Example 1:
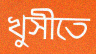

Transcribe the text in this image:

খুসীতে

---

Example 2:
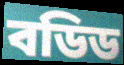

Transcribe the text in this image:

বডিড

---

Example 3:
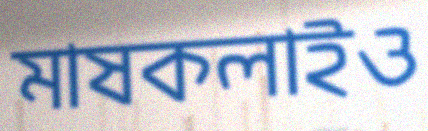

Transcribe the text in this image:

মাষকলাইও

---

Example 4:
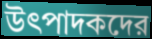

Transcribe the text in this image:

উৎপাদকদের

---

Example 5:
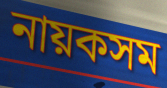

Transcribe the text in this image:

নায়কসম